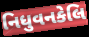
નિધુવનકેલિ